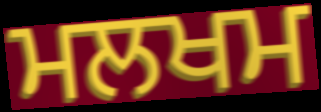
ਮਲਖਮ